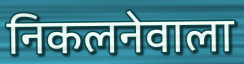
निकलनेवाला